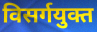
विसर्गयुक्त